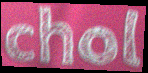
chol